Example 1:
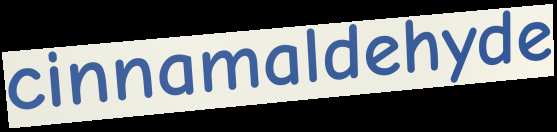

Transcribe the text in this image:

cinnamaldehyde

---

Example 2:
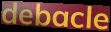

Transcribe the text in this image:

debacle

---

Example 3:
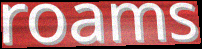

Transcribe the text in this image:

roams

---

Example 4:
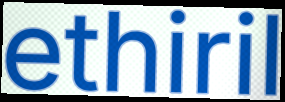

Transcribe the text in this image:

ethiril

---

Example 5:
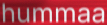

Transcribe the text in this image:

hummaa